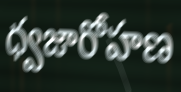
ధ్వజారోహణ